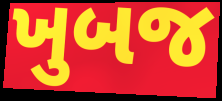
ખુબજ